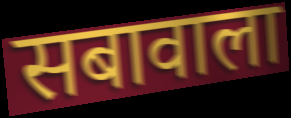
सबावाला